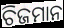
ଚିଜମାନ